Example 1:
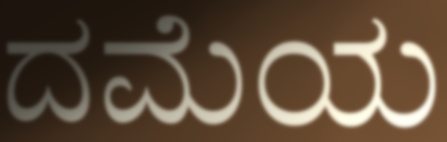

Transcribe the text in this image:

ದಮೆಯ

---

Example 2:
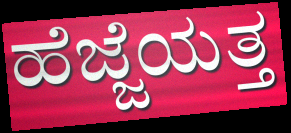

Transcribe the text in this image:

ಹೆಜ್ಜೆಯತ್ತ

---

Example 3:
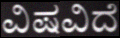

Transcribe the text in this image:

ವಿಷವಿದೆ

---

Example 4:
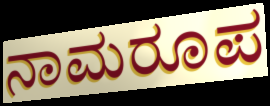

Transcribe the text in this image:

ನಾಮರೂಪ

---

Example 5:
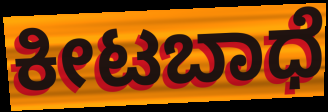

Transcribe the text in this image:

ಕೀಟಬಾಧೆ